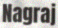
Nagraj